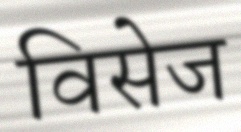
विसेज